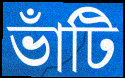
ভাঁটি